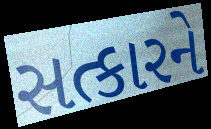
સત્કારને